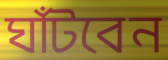
ঘাঁটবেন